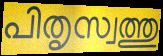
പിതൃസ്വത്തു